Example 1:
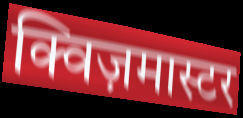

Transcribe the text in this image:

क्विज़मास्टर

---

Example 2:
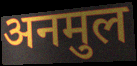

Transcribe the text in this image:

अनमुल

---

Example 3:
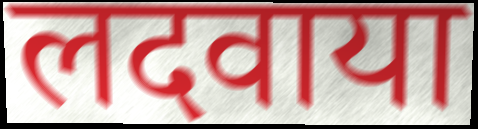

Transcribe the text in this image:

लदवाया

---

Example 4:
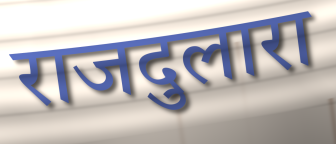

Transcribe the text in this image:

राजदुलारा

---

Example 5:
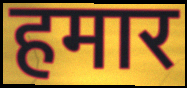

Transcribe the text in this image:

हमार